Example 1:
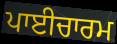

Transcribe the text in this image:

ਪਾਈਚਾਰਮ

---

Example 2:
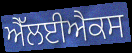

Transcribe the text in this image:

ਐੱਲਈਐਕਸ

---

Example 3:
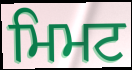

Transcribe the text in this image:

ਮਿਮਟ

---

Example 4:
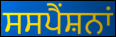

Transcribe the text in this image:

ਸਸਪੈਂਸ਼ਨਾਂ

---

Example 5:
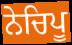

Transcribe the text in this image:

ਨੇਚਿਪੂ